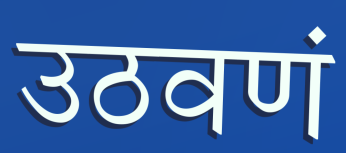
उठवणं